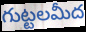
గుట్టలమీద